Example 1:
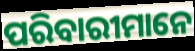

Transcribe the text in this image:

ପରିବାରୀମାନେ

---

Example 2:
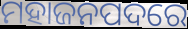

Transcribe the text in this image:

ମହାଜନପଦରେ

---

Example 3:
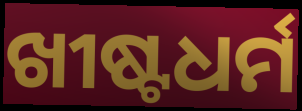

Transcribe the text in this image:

ଖୀଷ୍ଟଧର୍ମ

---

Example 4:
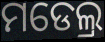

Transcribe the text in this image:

ମଡେଲ୍ର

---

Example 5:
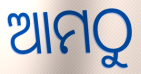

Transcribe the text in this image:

ଆମଠୁ